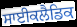
ਸਾਈਕਲੈਡਿਕ